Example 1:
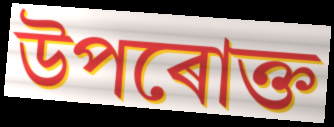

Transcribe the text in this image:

উপৰোক্ত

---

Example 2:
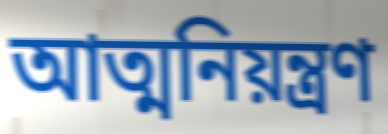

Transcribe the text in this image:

আত্মনিয়ন্ত্ৰণ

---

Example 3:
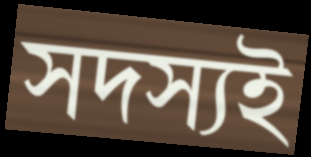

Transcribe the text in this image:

সদস্যই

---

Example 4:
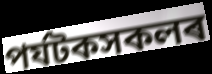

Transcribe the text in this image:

পৰ্যটকসকলৰ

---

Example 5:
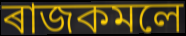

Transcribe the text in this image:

ৰাজকমলে